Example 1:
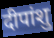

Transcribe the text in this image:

दीपांशु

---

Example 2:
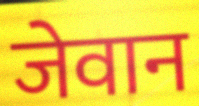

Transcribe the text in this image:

जेवान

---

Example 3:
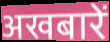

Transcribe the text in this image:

अखबारें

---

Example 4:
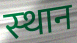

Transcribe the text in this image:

स्‍थान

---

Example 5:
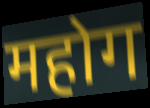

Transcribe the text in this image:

महोग